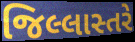
જિલ્લાસ્તરે